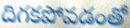
దిగకపోవడంతో